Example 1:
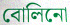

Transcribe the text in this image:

বোলিনো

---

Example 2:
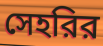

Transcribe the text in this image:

সেহরির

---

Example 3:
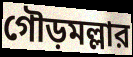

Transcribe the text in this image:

গৌড়মল্লার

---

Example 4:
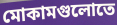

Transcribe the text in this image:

মোকামগুলোতে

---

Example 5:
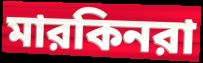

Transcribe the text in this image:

মারকিনরা